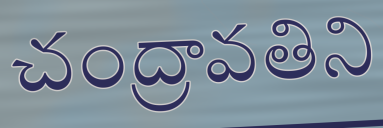
చంద్రావతిని